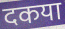
दकया